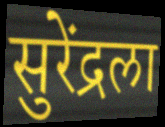
सुरेंद्रला